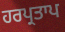
ਹਰਪ੍ਰਤਾਪ